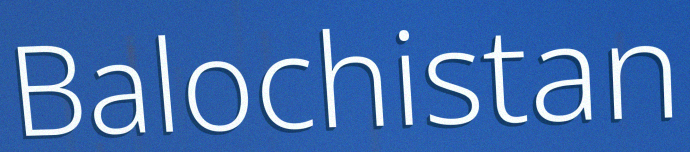
Balochistan